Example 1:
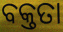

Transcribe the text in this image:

ବକ୍ତତା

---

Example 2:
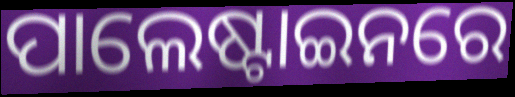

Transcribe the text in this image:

ପାଲେଷ୍ଟାଇନରେ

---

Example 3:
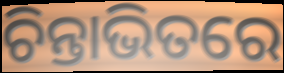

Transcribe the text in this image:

ଚିନ୍ତାଭିତରେ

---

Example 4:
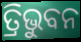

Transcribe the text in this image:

ତ୍ରିଭୁବନ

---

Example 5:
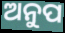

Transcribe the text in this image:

ଅନୁପ